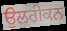
ਉਲਰੀਕਨ